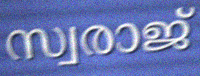
സ്വരാജ്